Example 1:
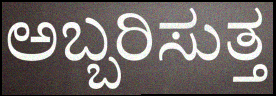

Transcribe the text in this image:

ಅಬ್ಬರಿಸುತ್ತ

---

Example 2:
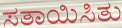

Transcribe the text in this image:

ಸತಾಯಿಸಿತು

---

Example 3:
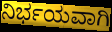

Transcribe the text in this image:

ನಿರ್ಭಯವಾಗಿ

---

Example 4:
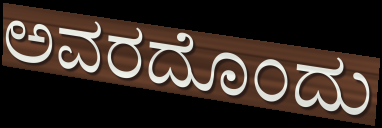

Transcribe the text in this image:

ಅವರದೊಂದು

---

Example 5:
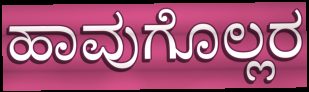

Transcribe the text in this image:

ಹಾವುಗೊಲ್ಲರ